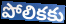
పోలికకు